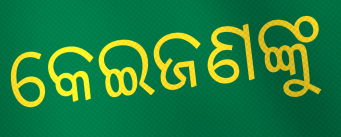
କେଇଜଣଙ୍କୁ